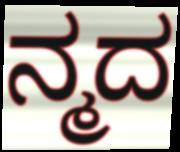
ನ್ಮದ